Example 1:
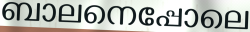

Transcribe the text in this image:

ബാലനെപ്പോലെ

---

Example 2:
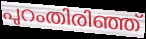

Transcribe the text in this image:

പുറംതിരിഞ്ഞ്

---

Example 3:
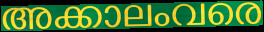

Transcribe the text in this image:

അക്കാലംവരെ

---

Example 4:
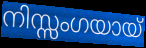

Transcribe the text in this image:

നിസ്സംഗയായ്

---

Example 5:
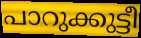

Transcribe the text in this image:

പാറുക്കുട്ടീ